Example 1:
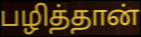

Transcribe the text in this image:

பழித்தான்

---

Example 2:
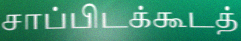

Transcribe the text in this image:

சாப்பிடக்கூடத்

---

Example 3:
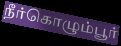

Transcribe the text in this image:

நீர்கொழும்பூர்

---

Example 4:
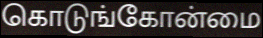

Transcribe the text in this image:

கொடுங்கோன்மை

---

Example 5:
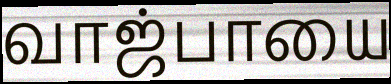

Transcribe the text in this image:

வாஜ்பாயை